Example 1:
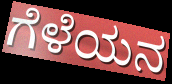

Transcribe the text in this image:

ಗೆಳೆಯನ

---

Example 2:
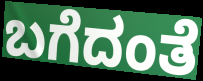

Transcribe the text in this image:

ಬಗೆದಂತೆ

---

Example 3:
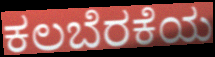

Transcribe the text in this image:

ಕಲಬೆರಕೆಯ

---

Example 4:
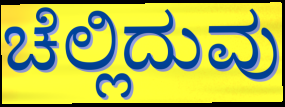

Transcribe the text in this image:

ಚೆಲ್ಲಿದುವು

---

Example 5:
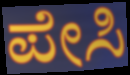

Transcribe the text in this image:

ಪೇಸಿ